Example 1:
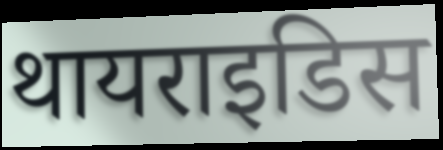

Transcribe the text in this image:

थायराइडिस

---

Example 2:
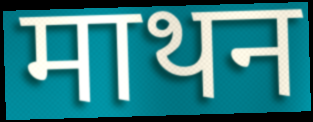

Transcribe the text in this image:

माथन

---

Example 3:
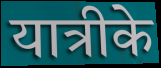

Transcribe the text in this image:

यात्रीके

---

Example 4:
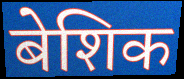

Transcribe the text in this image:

बेशिक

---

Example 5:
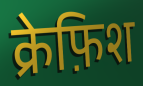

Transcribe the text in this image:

क्रेफ़िश